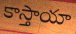
కాస్తాయా